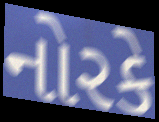
નોરકે